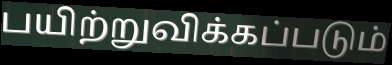
பயிற்றுவிக்கப்படும்